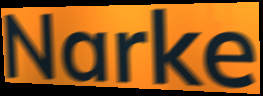
Narke